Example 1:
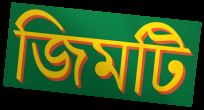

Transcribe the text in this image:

জিমটি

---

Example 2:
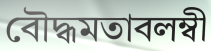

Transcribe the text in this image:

বৌদ্ধমতাবলম্বী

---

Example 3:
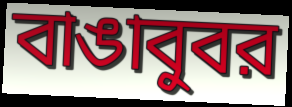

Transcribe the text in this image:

বাঙাবুবর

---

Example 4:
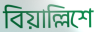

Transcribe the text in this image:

বিয়াল্লিশে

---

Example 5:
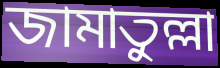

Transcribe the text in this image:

জামাতুল্লা